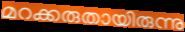
മറക്കരുതായിരുന്നു